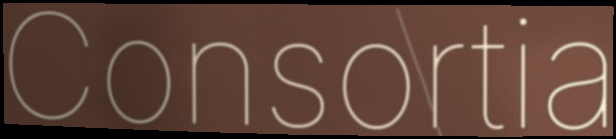
Consortia